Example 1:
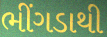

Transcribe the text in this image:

ભીંગડાથી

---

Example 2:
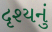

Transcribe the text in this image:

દૃશ્યનું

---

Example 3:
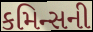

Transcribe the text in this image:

કમિન્સની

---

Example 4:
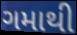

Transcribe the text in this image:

ગમાથી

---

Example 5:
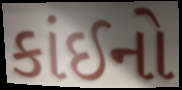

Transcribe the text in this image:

કાંઈનો